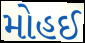
મોહઈ